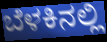
ಬೆಳಕಿನಲ್ಲಿ